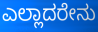
ಎಲ್ಲಾದರೇನು